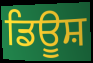
ਡਿਊਸ਼